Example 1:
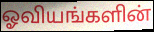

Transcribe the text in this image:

ஓவியங்களின்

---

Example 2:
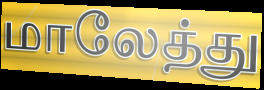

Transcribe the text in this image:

மாலேத்து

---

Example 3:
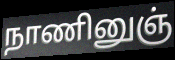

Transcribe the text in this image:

நாணினுஞ்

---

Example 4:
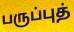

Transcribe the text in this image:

பருப்புத்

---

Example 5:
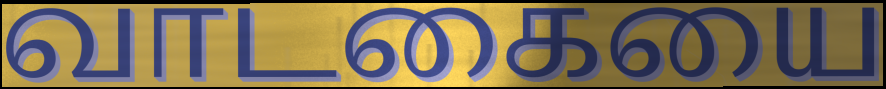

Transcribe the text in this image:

வாடகையை